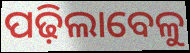
ପଢ଼ିଲାବେଳୁ